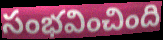
సంభవించింది